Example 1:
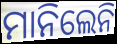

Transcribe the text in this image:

ମାନିଲେନି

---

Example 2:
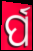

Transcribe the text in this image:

ର୍ପ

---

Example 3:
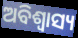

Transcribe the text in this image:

ଅବିଶ୍ୱାସ୍ୟ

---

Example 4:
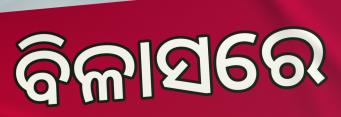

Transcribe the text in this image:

ବିଳାସରେ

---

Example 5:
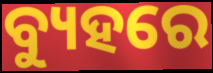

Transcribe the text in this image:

ବ୍ୟୁହରେ